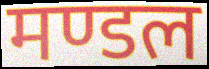
मण्डल